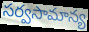
సర్వసామాన్య